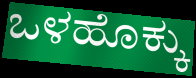
ಒಳಹೊಕ್ಕು